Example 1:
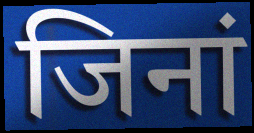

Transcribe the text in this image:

जिनां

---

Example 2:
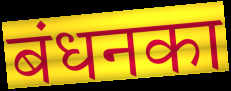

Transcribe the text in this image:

बंधनका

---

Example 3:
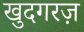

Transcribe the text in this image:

खुदगरज़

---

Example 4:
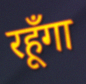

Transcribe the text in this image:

रहूँगा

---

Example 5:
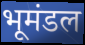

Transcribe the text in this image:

भूमंडल